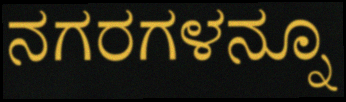
ನಗರಗಳನ್ನೂ